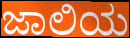
ಜಾಲಿಯ